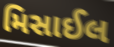
મિસાઈલ